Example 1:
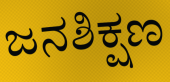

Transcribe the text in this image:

ಜನಶಿಕ್ಷಣ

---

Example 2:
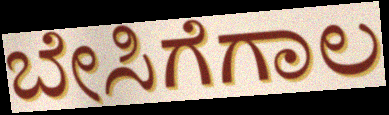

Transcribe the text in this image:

ಬೇಸಿಗೆಗಾಲ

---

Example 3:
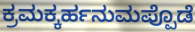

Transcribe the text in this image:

ಕ್ರಮಕ್ಕರ್ಹನುಮಪ್ಪೊಡೆ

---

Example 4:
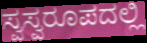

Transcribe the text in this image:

ಸ್ವಸ್ವರೂಪದಲ್ಲಿ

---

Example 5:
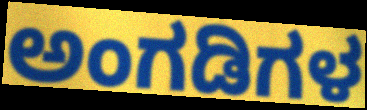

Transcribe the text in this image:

ಅಂಗಡಿಗಳ